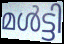
മൾട്ടി